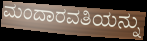
ಮಂದಾರವತಿಯನ್ನು